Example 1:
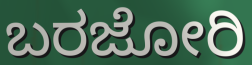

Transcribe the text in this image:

ಬರಜೋರಿ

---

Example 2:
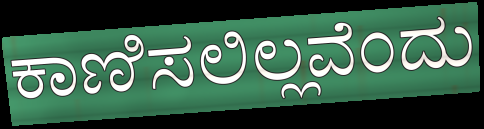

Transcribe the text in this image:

ಕಾಣಿಸಲಿಲ್ಲವೆಂದು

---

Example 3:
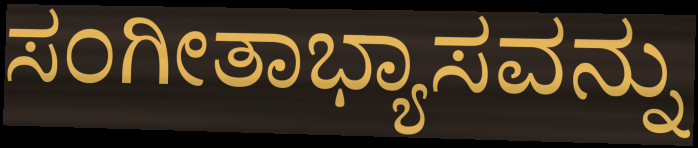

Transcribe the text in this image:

ಸಂಗೀತಾಭ್ಯಾಸವನ್ನು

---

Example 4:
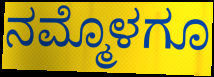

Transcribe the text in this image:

ನಮ್ಮೊಳಗೂ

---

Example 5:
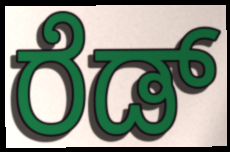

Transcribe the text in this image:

ರೆಡ್